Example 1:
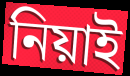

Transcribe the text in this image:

নিয়াই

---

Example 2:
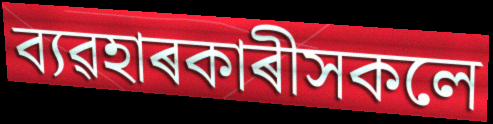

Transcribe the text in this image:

ব্যৱহাৰকাৰীসকলে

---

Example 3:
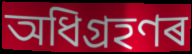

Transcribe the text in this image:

অধিগ্ৰহণৰ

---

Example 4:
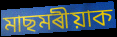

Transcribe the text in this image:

মাছমৰীয়াক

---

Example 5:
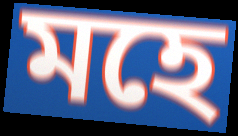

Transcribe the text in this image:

মহে